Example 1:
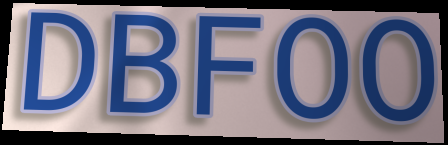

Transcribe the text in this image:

DBFOO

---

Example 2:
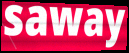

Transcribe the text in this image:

saway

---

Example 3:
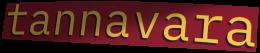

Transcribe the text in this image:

tannavara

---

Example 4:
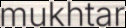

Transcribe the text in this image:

mukhtar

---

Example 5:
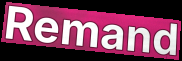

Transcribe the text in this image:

Remand